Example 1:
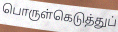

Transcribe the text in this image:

பொருள்கெடுத்துப்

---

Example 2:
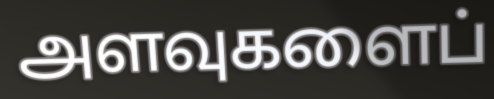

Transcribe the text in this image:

அளவுகளைப்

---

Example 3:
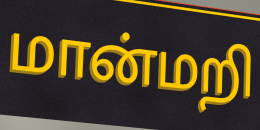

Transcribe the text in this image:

மான்மறி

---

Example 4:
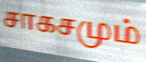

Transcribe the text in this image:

சாகசமும்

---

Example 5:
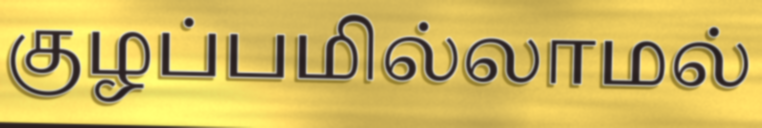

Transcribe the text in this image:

குழப்பமில்லாமல்